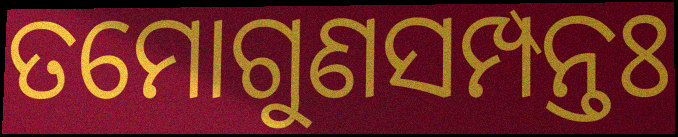
ତମୋଗୁଣସମ୍ପନ୍ତଃ